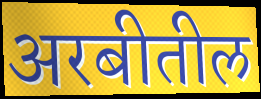
अरबीतील